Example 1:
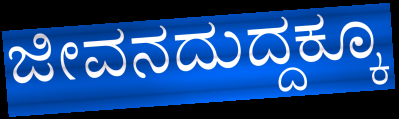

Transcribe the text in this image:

ಜೀವನದುದ್ದಕ್ಕೂ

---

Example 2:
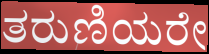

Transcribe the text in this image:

ತರುಣಿಯರೇ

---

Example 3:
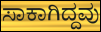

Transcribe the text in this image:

ಸಾಕಾಗಿದ್ದವು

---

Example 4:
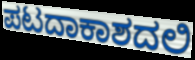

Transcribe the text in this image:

ಪಟದಾಕಾಶದಲಿ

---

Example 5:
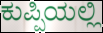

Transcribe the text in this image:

ಕುಪ್ಪಿಯಲ್ಲಿ